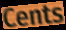
Cents